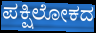
ಪಕ್ಷಿಲೋಕದ